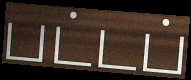
பட்டப்